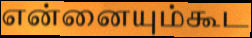
என்னையும்கூட